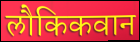
लौकिकवान